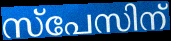
സ്പേസിന്